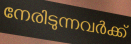
നേരിടുന്നവർക്ക്